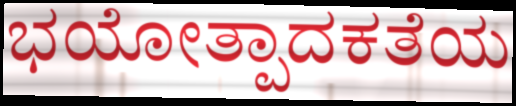
ಭಯೋತ್ಪಾದಕತೆಯ